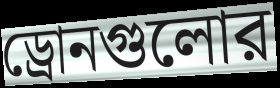
ড্রোনগুলোর